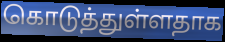
கொடுத்துள்ளதாக